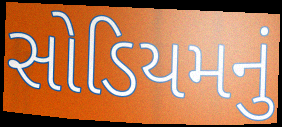
સોડિયમનું